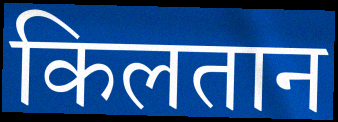
किलतान